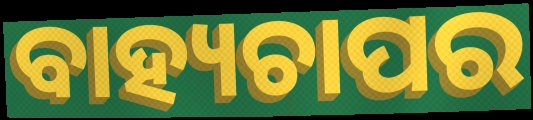
ବାହ୍ୟଚାପର